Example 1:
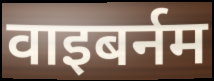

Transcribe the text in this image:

वाइबर्नम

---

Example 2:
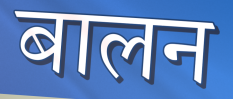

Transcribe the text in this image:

बालन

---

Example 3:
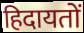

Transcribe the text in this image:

हिदायतों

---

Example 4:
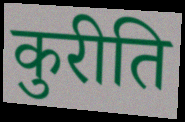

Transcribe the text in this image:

कुरीति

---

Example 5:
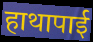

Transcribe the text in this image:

हाथापाई